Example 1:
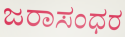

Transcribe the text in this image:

ಜರಾಸಂಧರ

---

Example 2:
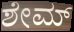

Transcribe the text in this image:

ಶೇಮ್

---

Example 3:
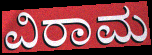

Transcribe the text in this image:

ವಿರಾಮ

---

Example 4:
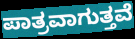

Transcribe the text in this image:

ಪಾತ್ರವಾಗುತ್ತವೆ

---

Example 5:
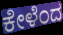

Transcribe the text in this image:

ಕೇಳೆಂದ